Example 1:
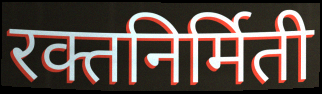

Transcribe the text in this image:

रक्तनिर्मिती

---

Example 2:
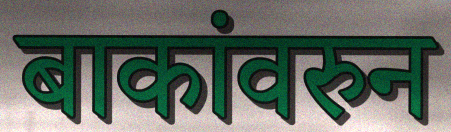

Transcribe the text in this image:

बाकांवरुन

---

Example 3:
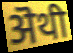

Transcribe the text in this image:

ऄथी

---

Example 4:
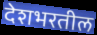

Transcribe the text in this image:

देशभरतील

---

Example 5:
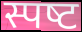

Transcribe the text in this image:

स्‍पष्‍ट